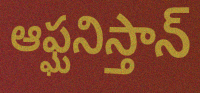
ఆఫ్ఘనిస్తాన్